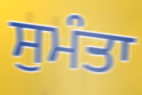
ਸੁਮੰਤਾ